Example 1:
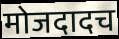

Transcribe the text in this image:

मोजदादच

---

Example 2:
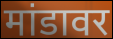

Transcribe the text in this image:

मांडावर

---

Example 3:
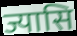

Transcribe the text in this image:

ज्यासि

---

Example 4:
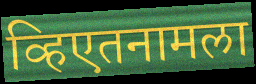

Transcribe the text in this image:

व्हिएतनामला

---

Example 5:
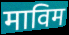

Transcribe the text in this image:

माविम